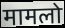
मामलो